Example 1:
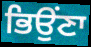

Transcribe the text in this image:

ਭਿਉਂਣਾ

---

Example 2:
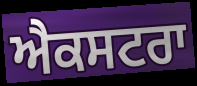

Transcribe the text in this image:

ਐਕਸਟਰਾ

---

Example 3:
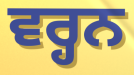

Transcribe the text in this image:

ਵਰ੍ਹਨ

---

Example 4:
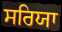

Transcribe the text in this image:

ਸਰਿਯਾ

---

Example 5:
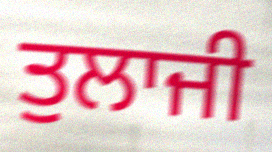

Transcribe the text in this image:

ਤੁਲਾਜੀ